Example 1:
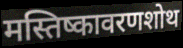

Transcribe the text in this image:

मस्तिष्कावरणशोथ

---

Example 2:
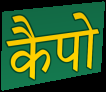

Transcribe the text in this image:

कैपो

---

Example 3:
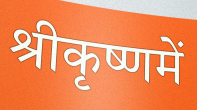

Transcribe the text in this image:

श्रीकृष्णमें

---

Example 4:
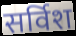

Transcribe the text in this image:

सर्विश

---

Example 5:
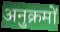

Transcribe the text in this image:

अनुक्रमों